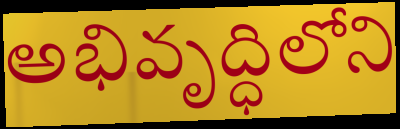
అభివృద్ధిలోని